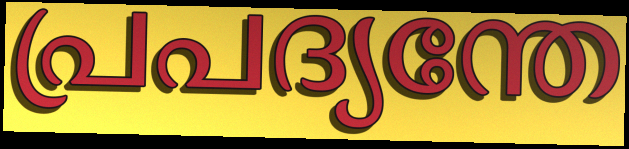
പ്രപദ്യന്തേ